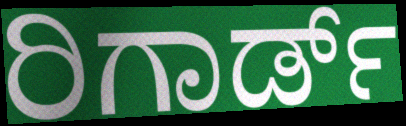
ರಿಗಾರ್ಡ್